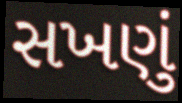
સખણું